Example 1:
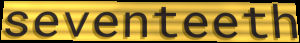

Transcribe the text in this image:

seventeeth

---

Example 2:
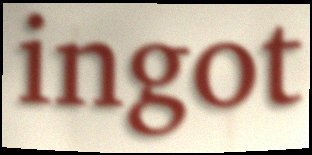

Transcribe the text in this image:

ingot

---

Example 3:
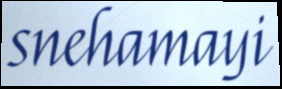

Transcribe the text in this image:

snehamayi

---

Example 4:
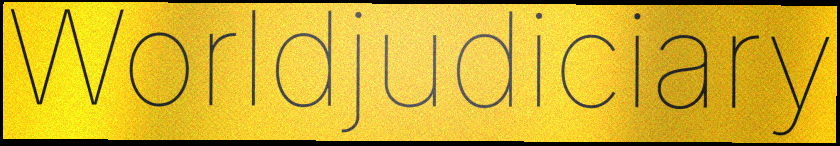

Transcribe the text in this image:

Worldjudiciary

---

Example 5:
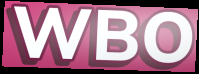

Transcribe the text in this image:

WBO